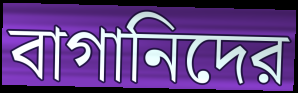
বাগানিদের